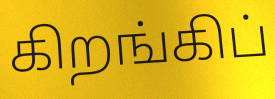
கிறங்கிப்